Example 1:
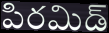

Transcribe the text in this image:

పిరమిడ్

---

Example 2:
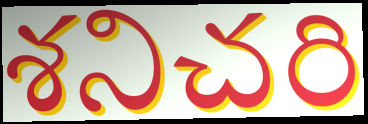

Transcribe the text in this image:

శనిచరి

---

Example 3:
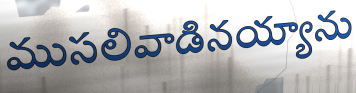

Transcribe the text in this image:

ముసలివాడినయ్యాను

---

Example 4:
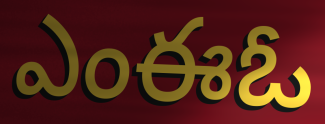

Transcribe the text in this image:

ఎంఈఓ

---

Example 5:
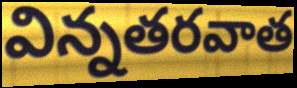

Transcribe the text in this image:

విన్నతరవాత